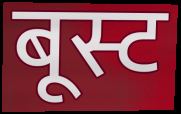
बूस्ट